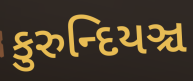
કુરુન્દિયઞ્ચ